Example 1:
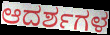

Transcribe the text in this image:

ಆದರ್ಶಗಳ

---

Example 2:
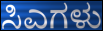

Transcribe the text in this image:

ಸಿಎಗಳು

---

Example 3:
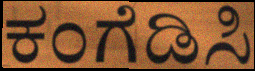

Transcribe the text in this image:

ಕಂಗೆಡಿಸಿ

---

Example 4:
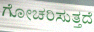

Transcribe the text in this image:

ಗೋಚರಿಸುತ್ತದೆ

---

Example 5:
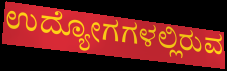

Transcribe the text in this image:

ಉದ್ಯೋಗಗಳಲ್ಲಿರುವ